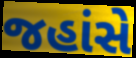
જહાંસે